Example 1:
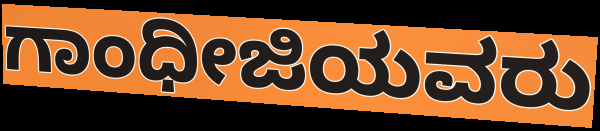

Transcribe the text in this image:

ಗಾಂಧೀಜಿಯವರು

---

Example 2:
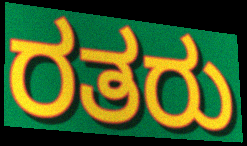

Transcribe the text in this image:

ರತರು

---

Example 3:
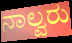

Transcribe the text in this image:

ನಾಲ್ವರು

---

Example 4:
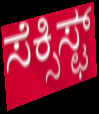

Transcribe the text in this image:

ಸೆಕ್ಸಿಸ್ಟ್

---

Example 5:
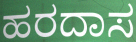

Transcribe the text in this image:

ಹರದಾಸ